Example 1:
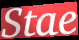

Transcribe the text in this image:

Stae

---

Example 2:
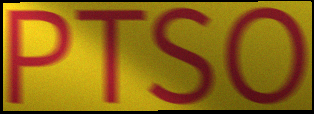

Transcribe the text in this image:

PTSO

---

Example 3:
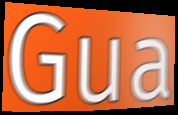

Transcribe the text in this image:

Gua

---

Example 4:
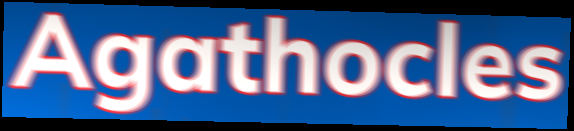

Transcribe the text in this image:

Agathocles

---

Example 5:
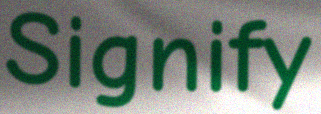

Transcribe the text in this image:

Signify